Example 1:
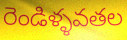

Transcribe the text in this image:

రెండిళ్ళవతల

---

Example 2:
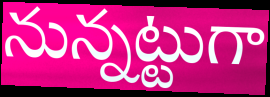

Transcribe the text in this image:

నున్నట్టుగా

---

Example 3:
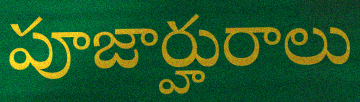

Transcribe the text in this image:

పూజార్హురాలు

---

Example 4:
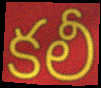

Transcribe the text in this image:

కలీ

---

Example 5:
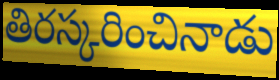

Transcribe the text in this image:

తిరస్కరించినాడు